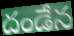
దండేన